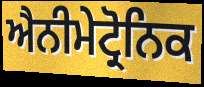
ਐਨੀਮੇਟ੍ਰੋਨਿਕ